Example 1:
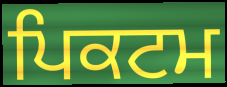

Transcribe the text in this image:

ਪਿਕਟਮ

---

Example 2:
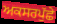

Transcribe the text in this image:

ਅਕਸਰਪੁੱਛੇ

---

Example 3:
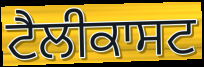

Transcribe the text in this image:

ਟੈਲੀਕਾਸਟ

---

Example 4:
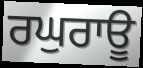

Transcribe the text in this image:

ਰਘੁਰਾਊ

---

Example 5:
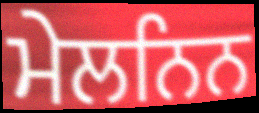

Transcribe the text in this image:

ਮੇਲਨਿਨ